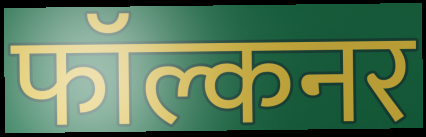
फॉल्कनर